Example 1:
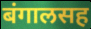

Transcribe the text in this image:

बंगालसह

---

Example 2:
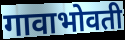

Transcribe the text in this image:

गावाभोवती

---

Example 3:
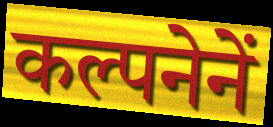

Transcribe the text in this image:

कल्पनेनें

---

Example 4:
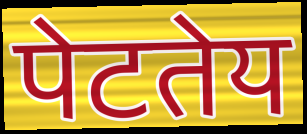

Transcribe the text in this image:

पेटतेय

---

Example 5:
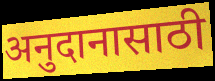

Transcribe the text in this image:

अनुदानासाठी